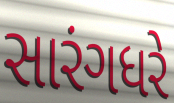
સારંગધરે